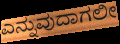
ಎನ್ನುವುದಾಗಲೀ